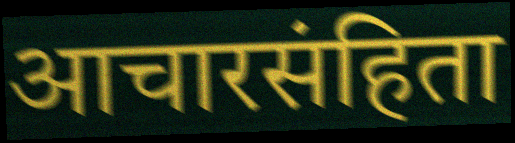
आचारसंहिता